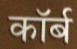
कॉर्ब